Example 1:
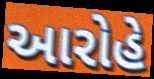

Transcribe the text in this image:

આરોહે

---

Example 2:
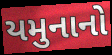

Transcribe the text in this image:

યમુનાનો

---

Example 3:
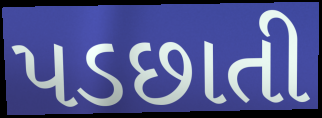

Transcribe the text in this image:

પડછાતી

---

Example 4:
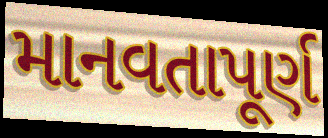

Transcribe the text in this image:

માનવતાપૂર્ણ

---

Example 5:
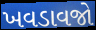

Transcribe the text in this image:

ખવડાવજો